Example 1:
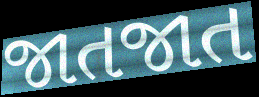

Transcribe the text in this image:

જાતજાત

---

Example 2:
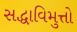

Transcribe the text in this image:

સદ્ધાવિમુત્તો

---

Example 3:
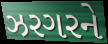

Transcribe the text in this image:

ઝરગરને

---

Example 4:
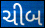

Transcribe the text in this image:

ચીબ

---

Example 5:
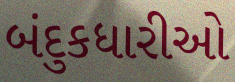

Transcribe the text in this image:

બંદુકધારીઓ